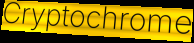
Cryptochrome